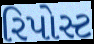
રિપોસ્ટ